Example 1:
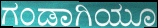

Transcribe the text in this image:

ಗಂಡಾಗಿಯೂ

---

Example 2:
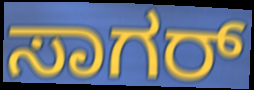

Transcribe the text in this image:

ಸಾಗರ್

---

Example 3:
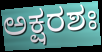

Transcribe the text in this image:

ಅಕ್ಷರಶಃ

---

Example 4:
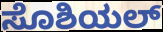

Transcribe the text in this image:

ಸೊಶಿಯಲ್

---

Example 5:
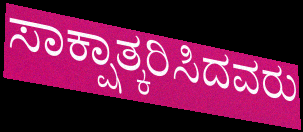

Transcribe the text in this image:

ಸಾಕ್ಷಾತ್ಕರಿಸಿದವರು